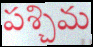
పశ్చిమ